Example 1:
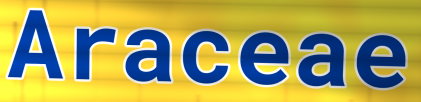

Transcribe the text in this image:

Araceae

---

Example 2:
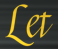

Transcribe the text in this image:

Let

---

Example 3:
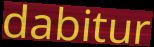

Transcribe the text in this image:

dabitur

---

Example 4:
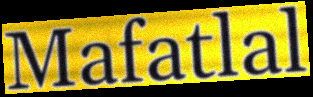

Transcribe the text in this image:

Mafatlal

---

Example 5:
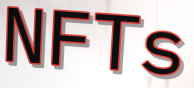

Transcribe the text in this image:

NFTs